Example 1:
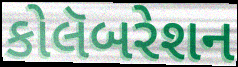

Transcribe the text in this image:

કોલૅબરેશન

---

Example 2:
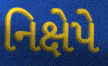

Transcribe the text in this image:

નિક્ષેપે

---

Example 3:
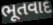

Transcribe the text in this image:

ભૂતવાદ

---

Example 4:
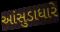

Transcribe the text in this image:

આંસુડાધારે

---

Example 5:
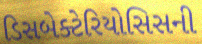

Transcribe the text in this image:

ડિસબેક્ટેરિયોસિસની